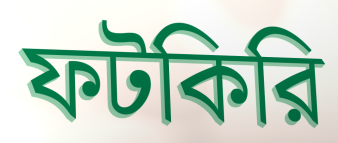
ফটকিরি